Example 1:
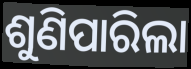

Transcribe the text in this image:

ଶୁଣିପାରିଲା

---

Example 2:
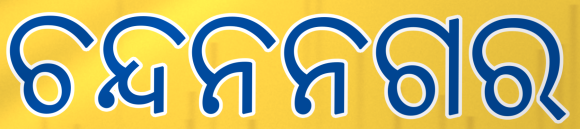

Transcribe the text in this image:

ଚନ୍ଦନନଗର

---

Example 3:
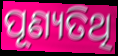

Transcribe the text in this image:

ପୂଣ୍ୟତିଥି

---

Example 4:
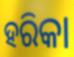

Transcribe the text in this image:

ହରିକା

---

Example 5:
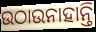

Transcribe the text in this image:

ଉଠାଉନାହାନ୍ତି